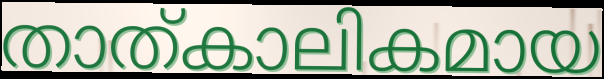
താത്കാലികമായ